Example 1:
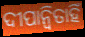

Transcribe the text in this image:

ଦୀପାନ୍ୱିତାହିଁ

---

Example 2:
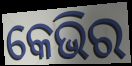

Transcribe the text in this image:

କେଭିର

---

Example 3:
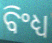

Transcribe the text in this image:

ବିଂଧ୍ୟ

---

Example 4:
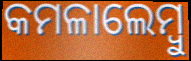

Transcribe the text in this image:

କମଳାଲେମ୍ୱୁ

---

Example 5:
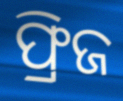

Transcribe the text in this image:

ଫ୍ରିଜ